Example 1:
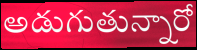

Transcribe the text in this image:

అడుగుతున్నారో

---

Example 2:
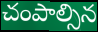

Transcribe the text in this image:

చంపాల్సిన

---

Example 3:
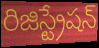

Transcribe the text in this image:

రిజిస్ట్రేషన్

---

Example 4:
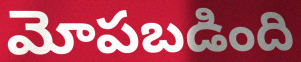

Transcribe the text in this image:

మోపబడింది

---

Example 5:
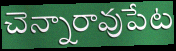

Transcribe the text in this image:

చెన్నారావుపేట